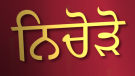
ਨਿਚੋੜੋ